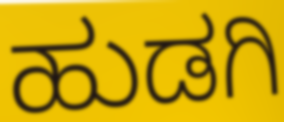
ಹುಡಗಿ